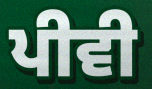
ਪੀਵੀ